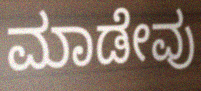
ಮಾಡೇವು